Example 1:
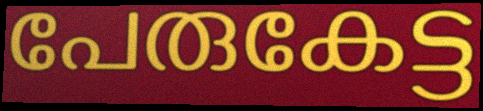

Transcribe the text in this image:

പേരുകേട്ട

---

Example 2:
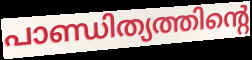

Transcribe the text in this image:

പാണ്ഡിത്യത്തിന്റെ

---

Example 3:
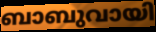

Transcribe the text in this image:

ബാബുവായി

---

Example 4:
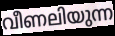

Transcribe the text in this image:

വീണലിയുന്ന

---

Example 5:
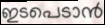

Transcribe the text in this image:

ഇടപെടാൻ